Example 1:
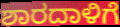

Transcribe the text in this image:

ಶಾರದಾಳಿಗೆ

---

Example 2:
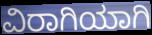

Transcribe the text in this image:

ವಿರಾಗಿಯಾಗಿ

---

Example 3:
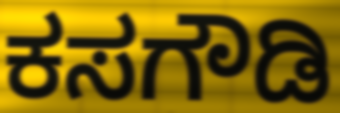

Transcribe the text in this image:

ಕಸಗೌಡಿ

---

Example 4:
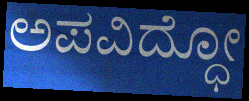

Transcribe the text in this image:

ಅಪವಿದ್ಧೋ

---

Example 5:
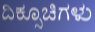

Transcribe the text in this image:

ದಿಕ್ಸೂಚಿಗಳು